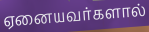
ஏனையவர்களால்